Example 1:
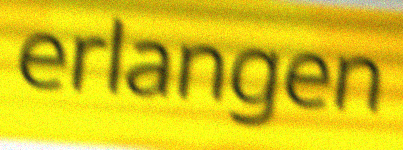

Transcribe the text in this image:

erlangen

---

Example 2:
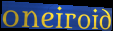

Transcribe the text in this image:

oneiroid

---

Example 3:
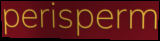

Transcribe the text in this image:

perisperm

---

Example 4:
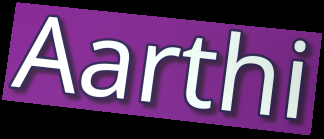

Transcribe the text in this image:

Aarthi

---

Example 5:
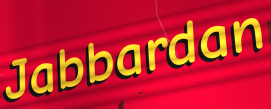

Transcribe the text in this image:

Jabbardan